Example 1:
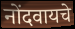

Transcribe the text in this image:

नोंदवायचे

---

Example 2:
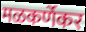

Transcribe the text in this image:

मळकर्णेकर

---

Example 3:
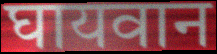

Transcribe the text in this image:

घायवान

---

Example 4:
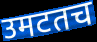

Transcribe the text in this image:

उमटतच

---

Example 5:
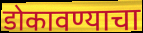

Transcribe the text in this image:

डोकावण्याचा